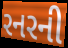
રનરની